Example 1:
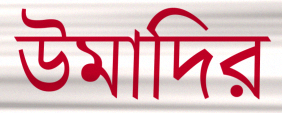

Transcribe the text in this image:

উমাদির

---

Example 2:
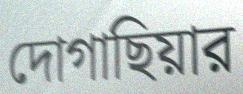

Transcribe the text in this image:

দোগাছিয়ার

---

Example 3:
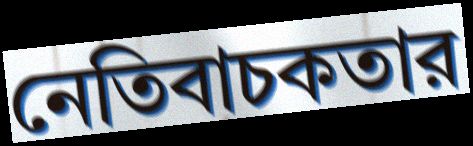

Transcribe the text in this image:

নেতিবাচকতার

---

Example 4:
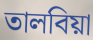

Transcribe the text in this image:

তালবিয়া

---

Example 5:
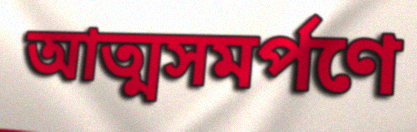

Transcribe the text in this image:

আত্মসমর্পণে